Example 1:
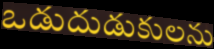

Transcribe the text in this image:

ఒడుదుడుకులను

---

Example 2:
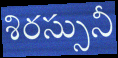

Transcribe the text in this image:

శిరస్సునీ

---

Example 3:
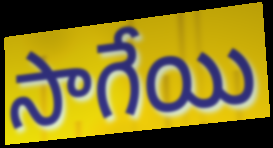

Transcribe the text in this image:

సాగేయి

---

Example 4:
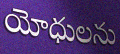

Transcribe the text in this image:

యోధులను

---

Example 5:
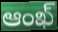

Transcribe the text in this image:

ఆంఖ్